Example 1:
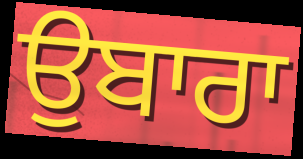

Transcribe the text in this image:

ਉਬਾਰਾ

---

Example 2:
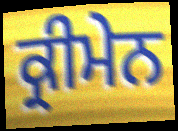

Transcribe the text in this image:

ਕ੍ਰੀਮੇਨ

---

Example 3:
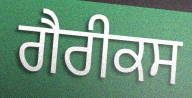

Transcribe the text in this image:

ਗੈਰੀਕਸ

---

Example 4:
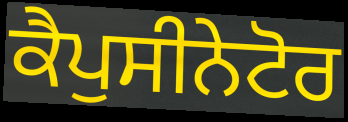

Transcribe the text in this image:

ਕੈਪੁਸੀਨੇਟੋਰ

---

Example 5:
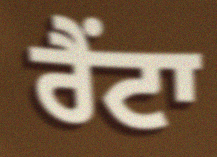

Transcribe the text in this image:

ਰੈਂਟਾ